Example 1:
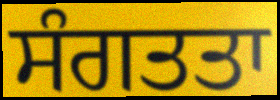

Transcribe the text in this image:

ਸੰਗਤਤਾ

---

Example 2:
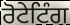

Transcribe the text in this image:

ਰੋਟੇਟਿੰਗ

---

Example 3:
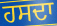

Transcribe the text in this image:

ਹਸਦਾ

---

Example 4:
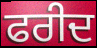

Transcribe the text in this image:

ਫਰੀਦ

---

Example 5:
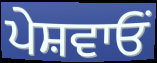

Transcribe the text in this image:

ਪੇਸ਼ਵਾਓਂ